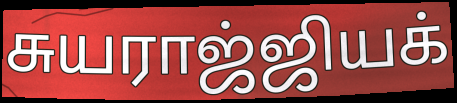
சுயராஜ்ஜியக்